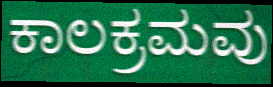
ಕಾಲಕ್ರಮವು